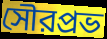
সৌরপ্রভ